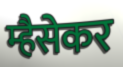
म्हैसेकर